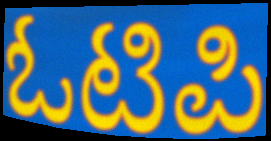
ಓಟಿಪಿ